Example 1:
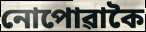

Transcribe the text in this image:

নোপোৱাকৈ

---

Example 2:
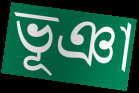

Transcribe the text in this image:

ভূঞা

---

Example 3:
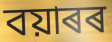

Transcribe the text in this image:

বয়াৰৰ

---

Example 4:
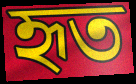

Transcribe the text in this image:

হৃত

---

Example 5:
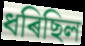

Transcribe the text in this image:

ধৰিছিল